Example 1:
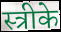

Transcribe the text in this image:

स्त्रीके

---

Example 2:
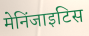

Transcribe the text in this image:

मेनिंजाइटिस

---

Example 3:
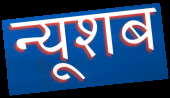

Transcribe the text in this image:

न्यूशब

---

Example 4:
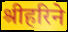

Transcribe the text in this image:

श्रीहरिने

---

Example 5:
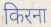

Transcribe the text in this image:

किरना